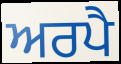
ਅਰਪੈ